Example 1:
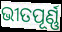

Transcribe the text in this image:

ଭୀତପୂର୍ଣ୍ଣ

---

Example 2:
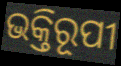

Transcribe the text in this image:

ଭକ୍ତିରୂପୀ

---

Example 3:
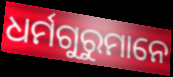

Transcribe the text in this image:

ଧର୍ମଗୁରୁମାନେ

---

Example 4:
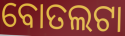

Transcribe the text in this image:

ବୋତଲଟା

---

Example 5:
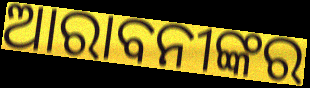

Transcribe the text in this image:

ଆରାବନୀଙ୍କର